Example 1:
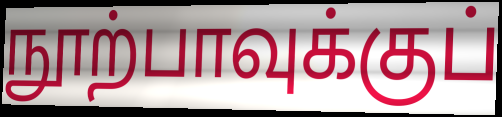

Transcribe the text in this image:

நூற்பாவுக்குப்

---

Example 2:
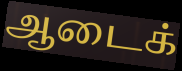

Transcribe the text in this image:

ஆடைக்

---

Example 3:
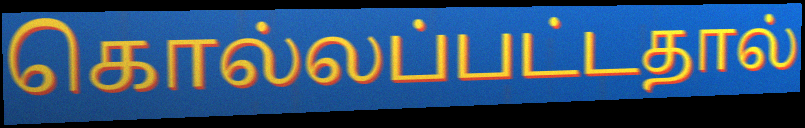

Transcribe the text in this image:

கொல்லப்பட்டதால்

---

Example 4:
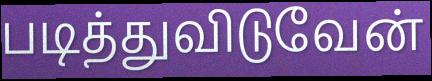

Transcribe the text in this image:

படித்துவிடுவேன்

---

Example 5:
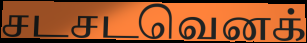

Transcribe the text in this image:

சடசடவெனக்